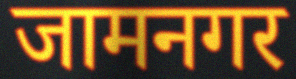
जामनगर